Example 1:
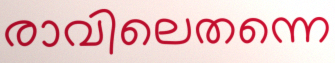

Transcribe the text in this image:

രാവിലെതന്നെ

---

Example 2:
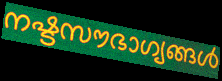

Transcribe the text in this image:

നഷ്ടസൗഭാഗ്യങ്ങൾ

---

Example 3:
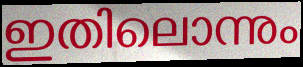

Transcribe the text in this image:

ഇതിലൊന്നും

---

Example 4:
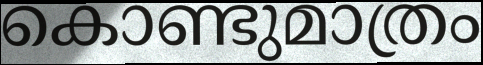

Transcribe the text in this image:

കൊണ്ടുമാത്രം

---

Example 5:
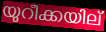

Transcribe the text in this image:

യുറീക്കയില്